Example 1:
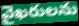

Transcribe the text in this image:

వైఖరులను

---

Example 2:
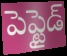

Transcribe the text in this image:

పెప్టైడ్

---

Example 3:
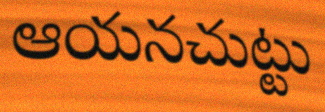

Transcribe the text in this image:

ఆయనచుట్టు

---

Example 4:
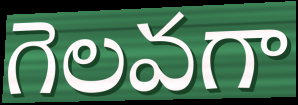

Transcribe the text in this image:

గెలవగా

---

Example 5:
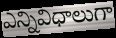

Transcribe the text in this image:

ఎన్నివిధాలుగా